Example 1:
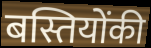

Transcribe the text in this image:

बस्तियोंकी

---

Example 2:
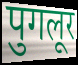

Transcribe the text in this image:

पुगलूर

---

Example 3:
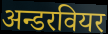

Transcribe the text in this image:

अन्डरवियर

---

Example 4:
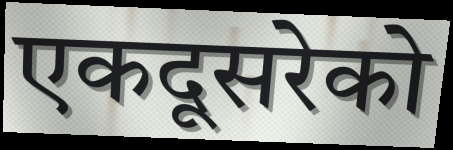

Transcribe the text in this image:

एकदूसरेको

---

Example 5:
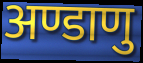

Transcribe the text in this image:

अण्डाणु